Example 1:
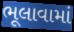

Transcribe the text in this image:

ભૂલાવામાં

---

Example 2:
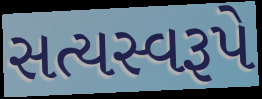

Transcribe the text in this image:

સત્યસ્વરૂપે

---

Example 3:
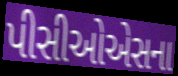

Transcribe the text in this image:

પીસીઓએસના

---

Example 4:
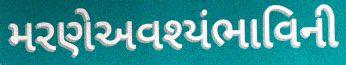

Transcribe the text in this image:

મરણેઅવશ્યંભાવિની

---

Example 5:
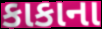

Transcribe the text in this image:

કાકાના